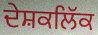
ਦੇਸ਼ਕਲਿੱਕ